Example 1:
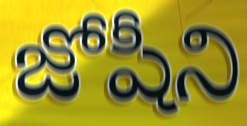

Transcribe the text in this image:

జోషీని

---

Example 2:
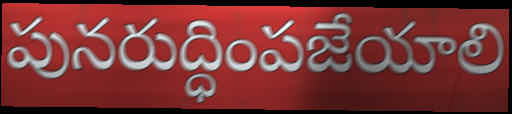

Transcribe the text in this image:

పునరుద్ధింపజేయాలి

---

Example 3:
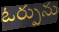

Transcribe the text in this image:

ఓర్పును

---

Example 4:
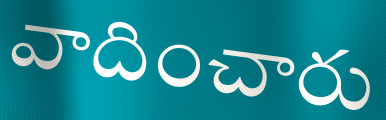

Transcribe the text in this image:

వాదించారు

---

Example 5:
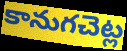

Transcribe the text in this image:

కానుగచెట్ల